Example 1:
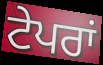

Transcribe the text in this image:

ਟੇਪਰਾਂ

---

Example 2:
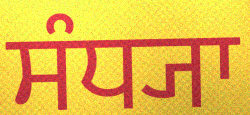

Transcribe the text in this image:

ਸੰਧ੍ਯਾ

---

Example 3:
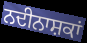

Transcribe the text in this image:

ਨਦੀਨਾਸ਼ਕਾਂ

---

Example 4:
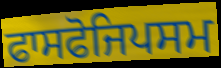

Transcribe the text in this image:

ਫਾਸਫੋਜਿਪਸਮ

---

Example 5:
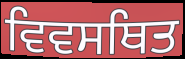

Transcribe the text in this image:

ਵਿਵਸਥਿਤ